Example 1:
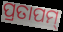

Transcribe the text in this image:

ପ୍ରତାପମ୍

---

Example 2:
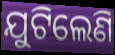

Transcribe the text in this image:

ଯୁଟିଲେଣି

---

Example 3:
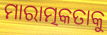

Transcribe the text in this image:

ମାରାତ୍ମକତାକୁ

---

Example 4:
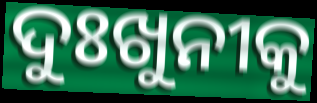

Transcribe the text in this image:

ଦୁଃଖୁନୀକୁ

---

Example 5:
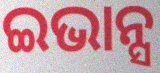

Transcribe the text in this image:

ଇଭାନ୍ସ